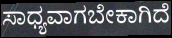
ಸಾಧ್ಯವಾಗಬೇಕಾಗಿದೆ